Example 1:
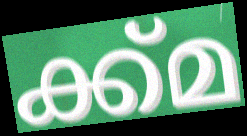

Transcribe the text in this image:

ക്ക്മ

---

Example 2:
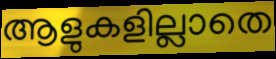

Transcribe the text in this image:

ആളുകളില്ലാതെ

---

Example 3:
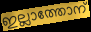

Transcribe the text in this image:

ഇല്ലാത്തോന്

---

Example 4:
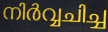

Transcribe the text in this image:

നിർവ്വചിച്ച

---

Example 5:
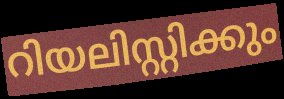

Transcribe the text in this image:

റിയലിസ്റ്റിക്കും